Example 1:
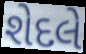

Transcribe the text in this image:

શેદલે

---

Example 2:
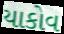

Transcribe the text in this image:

યાકોવ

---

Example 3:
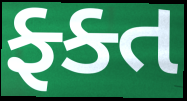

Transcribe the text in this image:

ફ્ક્ત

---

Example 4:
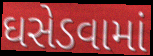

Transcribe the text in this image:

ઘસેડવામાં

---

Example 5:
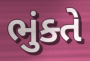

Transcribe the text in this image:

ભુંક્તે